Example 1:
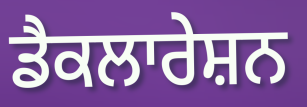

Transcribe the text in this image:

ਡੈਕਲਾਰੇਸ਼ਨ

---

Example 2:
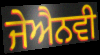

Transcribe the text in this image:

ਜੇਐਨਵੀ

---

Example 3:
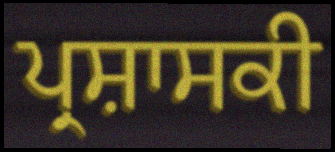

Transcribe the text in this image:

ਪ੍ਰਸ਼ਾਸਕੀ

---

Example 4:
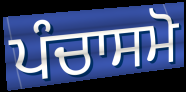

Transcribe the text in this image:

ਪੰਚਾਸਮੋ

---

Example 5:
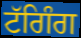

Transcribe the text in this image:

ਟੱਗਿੰਗ